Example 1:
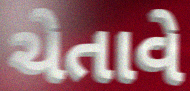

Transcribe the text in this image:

ચેતાવે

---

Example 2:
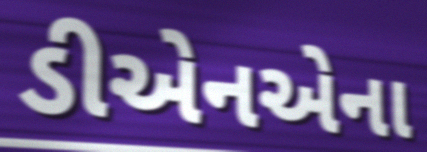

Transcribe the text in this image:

ડીએનએના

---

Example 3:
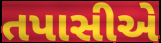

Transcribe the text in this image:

તપાસીએ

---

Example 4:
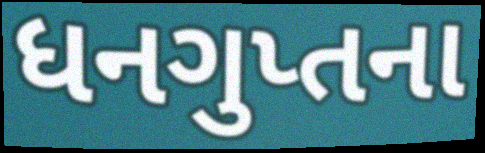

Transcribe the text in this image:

ધનગુપ્તના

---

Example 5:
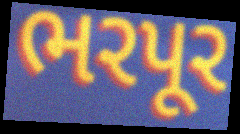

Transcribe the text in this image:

ભરપૂર